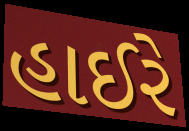
હાઈરે